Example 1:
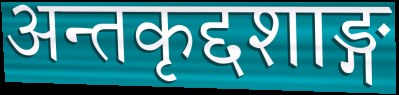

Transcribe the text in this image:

अन्तकृद्दशाङ्ग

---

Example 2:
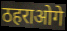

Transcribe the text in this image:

ठहराओगे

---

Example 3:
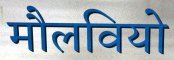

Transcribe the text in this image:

मौलवियो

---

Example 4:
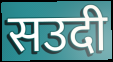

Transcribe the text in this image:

सउदी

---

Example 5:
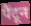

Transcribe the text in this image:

पैंटून